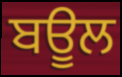
ਬਊਲ